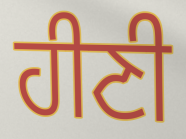
ਹੀਣੀ